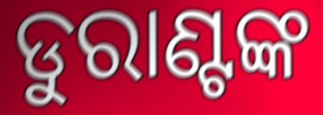
ଡୁରାଣ୍ଟଙ୍କ